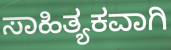
ಸಾಹಿತ್ಯಕವಾಗಿ